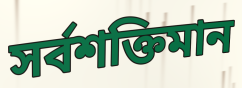
সৰ্বশক্তিমান